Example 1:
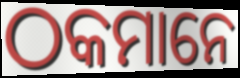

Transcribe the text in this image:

ଠକମାନେ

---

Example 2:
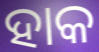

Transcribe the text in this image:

ହାକ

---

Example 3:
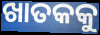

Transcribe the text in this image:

ଖାତକକୁ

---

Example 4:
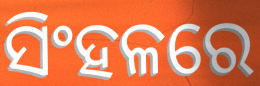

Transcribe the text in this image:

ସିଂହଳରେ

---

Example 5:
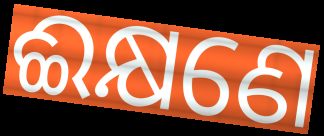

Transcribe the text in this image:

ଈକ୍ଷଣେ